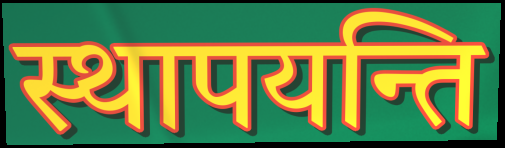
स्थापयन्ति